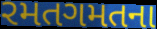
રમતગમતના